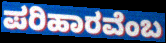
ಪರಿಹಾರವೆಂಬ